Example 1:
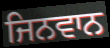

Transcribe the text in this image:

ਜਿਨਵਾਨ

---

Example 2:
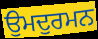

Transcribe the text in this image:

ਉਮਦੁਰਮਨ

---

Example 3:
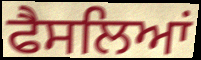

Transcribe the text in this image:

ਫੈਸਲਿਆਂ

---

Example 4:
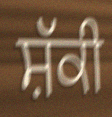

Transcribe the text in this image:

ਸ਼ੱਕੀ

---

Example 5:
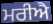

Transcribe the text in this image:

ਮਰੀਐ